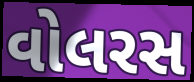
વોલરસ